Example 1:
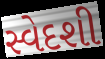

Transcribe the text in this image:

સ્વેદશી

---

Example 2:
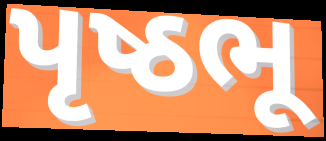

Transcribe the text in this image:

પૃષ્ઠભૂ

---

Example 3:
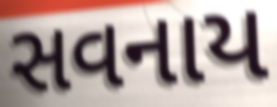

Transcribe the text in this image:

સવનાય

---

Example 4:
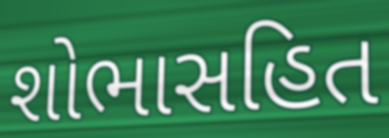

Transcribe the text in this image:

શોભાસહિત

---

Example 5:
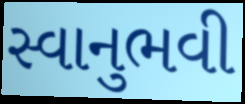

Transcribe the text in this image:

સ્વાનુભવી